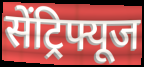
सेंट्रिफ्यूज